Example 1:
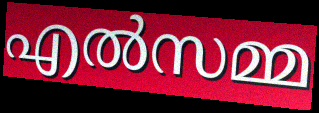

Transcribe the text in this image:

എൽസമ്മ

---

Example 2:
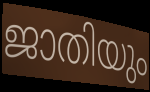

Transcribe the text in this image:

ജാതിയും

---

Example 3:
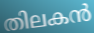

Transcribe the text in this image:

തിലകൻ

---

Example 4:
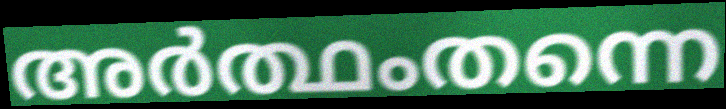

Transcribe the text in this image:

അർത്ഥംതന്നെ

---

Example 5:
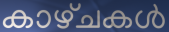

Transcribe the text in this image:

കാഴ്‌ചകൾ